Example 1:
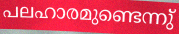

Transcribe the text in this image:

പലഹാരമുണ്ടെന്നു്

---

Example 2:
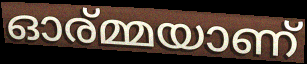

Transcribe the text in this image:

ഓര്മ്മയാണ്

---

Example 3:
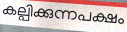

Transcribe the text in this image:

കല്പിക്കുന്നപക്ഷം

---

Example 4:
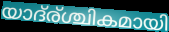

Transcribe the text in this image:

യാദ്ര്ശ്ചികമായി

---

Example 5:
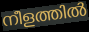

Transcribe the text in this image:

നീളത്തിൽ